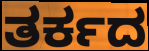
ತರ್ಕದ